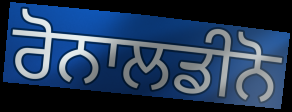
ਰੋਨਾਲਡੀਨੋ